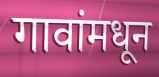
गावांमधून